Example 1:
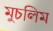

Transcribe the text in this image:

মুচলিম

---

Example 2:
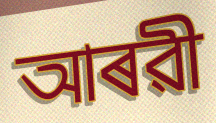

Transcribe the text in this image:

আৰৱী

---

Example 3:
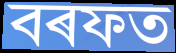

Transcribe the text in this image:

বৰফত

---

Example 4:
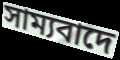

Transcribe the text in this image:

সাম্যবাদে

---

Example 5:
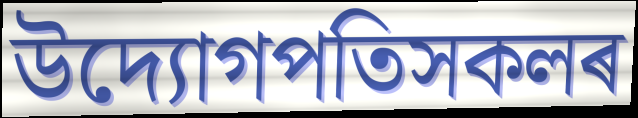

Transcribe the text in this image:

উদ্যোগপতিসকলৰ